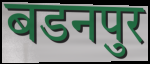
बडनपुर